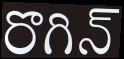
రొగిన్